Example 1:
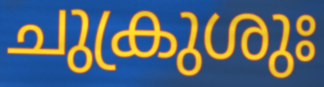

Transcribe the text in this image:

ചുക്രുശുഃ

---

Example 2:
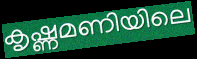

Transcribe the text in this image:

കൃഷ്ണമണിയിലെ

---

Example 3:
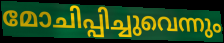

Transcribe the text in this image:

മോചിപ്പിച്ചുവെന്നും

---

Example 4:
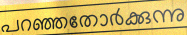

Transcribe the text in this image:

പറഞ്ഞതോർക്കുന്നു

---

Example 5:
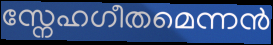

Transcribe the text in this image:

സ്നേഹഗീതമെന്നൻ